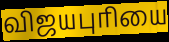
விஜயபுரியை